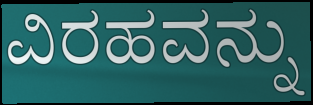
ವಿರಹವನ್ನು